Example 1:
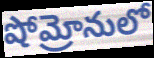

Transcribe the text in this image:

షోమ్రోనులో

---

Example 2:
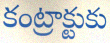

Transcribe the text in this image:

కంట్రాక్టుకు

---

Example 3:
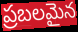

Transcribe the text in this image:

ప్రబలమైన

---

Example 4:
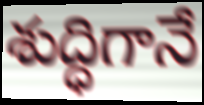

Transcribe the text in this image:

శుద్ధిగానే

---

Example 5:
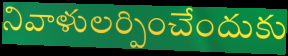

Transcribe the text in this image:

నివాళులర్పించేందుకు